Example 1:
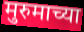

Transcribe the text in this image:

मुरुमाच्या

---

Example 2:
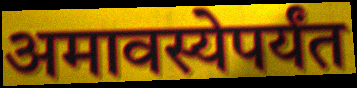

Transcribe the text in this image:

अमावस्येपर्यंत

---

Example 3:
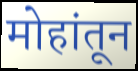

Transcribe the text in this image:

मोहांतून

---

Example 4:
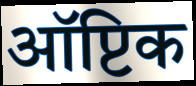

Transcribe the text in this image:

ऑप्टिक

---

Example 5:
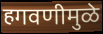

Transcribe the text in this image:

हगवणीमुळे